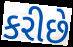
કરીછે